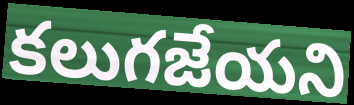
కలుగజేయని